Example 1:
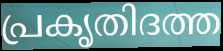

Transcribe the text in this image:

പ്രകൃതിദത്ത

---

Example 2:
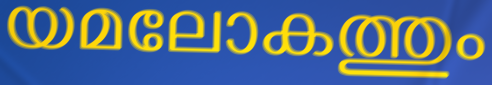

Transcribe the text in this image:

യമലോകത്തും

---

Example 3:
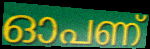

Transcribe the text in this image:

ഓപണ്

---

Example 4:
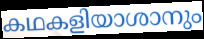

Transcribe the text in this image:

കഥകളിയാശാനും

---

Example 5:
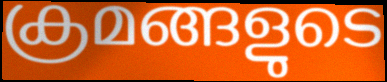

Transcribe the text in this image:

ക്രമങ്ങളുടെ